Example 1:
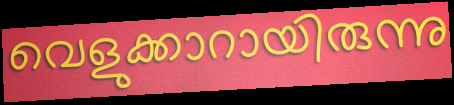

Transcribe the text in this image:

വെളുക്കാറായിരുന്നു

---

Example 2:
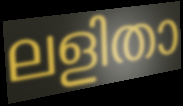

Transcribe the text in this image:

ലളിതാ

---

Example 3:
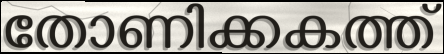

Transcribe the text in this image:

തോണിക്കകത്ത്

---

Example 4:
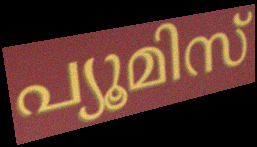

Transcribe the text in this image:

പ്യൂമിസ്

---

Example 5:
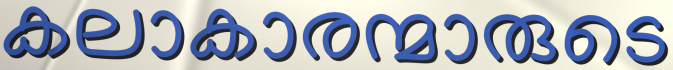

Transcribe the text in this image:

കലാകാരന്മാരുടെ